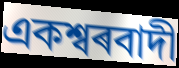
একশ্বৰবাদী